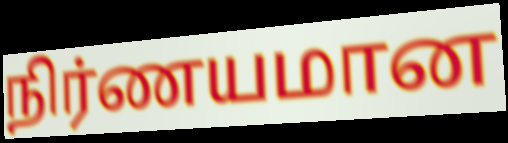
நிர்ணயமான